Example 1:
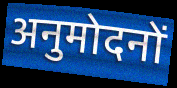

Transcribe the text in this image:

अनुमोदनों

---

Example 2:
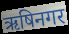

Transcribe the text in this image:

ऋषिनगर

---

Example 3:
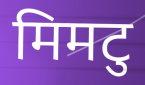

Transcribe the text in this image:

मिमटु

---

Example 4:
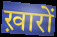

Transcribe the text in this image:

ख़ारों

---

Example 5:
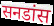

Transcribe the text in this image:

सनडांस